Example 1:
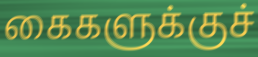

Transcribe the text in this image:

கைகளுக்குச்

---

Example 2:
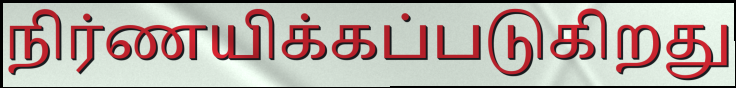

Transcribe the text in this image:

நிர்ணயிக்கப்படுகிறது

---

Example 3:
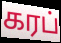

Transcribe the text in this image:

கரப்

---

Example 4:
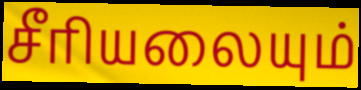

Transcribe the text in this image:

சீரியலையும்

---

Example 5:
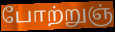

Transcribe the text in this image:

போற்றுஞ்